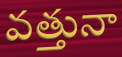
వత్తునా